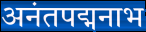
अनंतपद्मनाभ